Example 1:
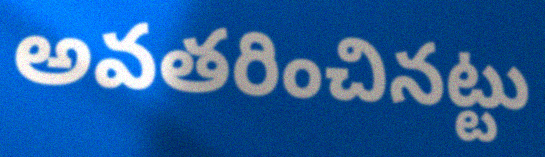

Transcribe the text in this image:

అవతరించినట్టు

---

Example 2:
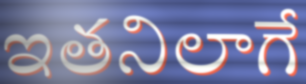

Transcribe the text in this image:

ఇతనిలాగే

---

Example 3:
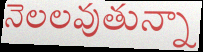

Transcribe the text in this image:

నెలలవుతున్నా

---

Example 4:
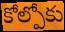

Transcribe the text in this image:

కోల్పోకు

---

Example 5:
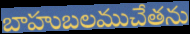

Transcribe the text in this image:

బాహుబలముచేతను